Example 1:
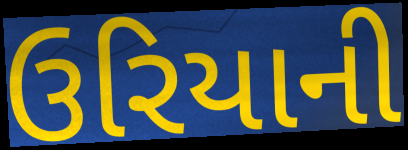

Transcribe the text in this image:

ઉરિયાની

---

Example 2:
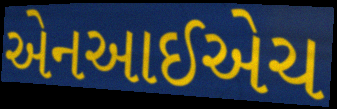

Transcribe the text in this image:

એનઆઈએચ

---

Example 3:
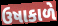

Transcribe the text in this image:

ઉષાકાળે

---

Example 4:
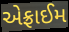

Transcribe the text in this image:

એફ્રાઈમ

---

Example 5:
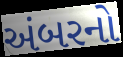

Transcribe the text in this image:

અંબરનો